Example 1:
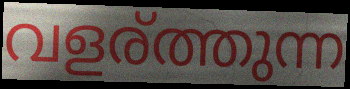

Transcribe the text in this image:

വളര്ത്തുന്ന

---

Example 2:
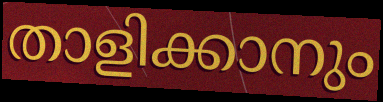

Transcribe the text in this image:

താളിക്കാനും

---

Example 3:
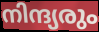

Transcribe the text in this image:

നിന്ദ്യരും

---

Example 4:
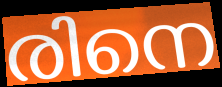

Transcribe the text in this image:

രിനെ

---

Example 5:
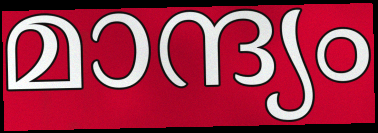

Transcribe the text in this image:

മാന്ദ്യം